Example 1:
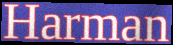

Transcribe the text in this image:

Harman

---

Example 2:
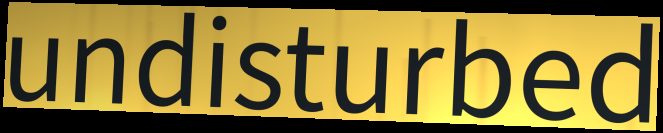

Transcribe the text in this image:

undisturbed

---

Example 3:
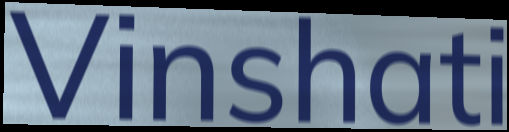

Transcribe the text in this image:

Vinshati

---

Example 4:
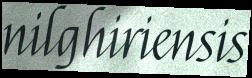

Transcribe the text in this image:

nilghiriensis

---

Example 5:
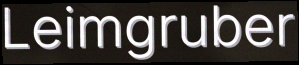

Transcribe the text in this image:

Leimgruber